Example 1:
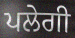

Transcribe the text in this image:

ਪਲੇਗੀ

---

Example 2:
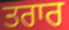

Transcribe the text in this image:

ਤਰਾਰ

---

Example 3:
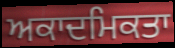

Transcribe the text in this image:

ਅਕਾਦਮਿਕਤਾ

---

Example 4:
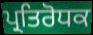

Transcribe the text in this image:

ਪ੍ਰਤਿਰੋਧਕ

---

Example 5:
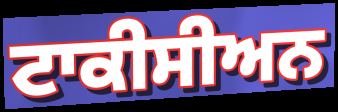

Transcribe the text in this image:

ਟਾਕੀਸੀਅਨ